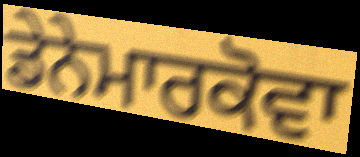
ਡੇਨੇਮਾਰਕੋਵਾ